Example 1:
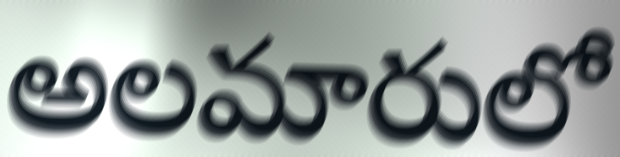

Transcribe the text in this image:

అలమారులో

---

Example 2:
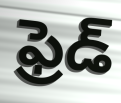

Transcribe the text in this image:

ఫ్రెడ్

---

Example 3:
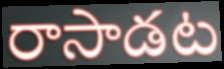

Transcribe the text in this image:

రాసాడట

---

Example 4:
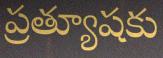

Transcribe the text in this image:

ప్రత్యూషకు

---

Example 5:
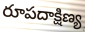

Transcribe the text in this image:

రూపదాక్షిణ్య